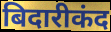
बिदारीकंद